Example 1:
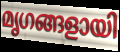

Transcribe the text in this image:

മൃഗങ്ങളായി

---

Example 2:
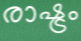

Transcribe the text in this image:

രാഷ്ട്രം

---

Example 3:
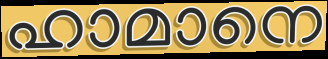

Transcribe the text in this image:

ഹാമാനെ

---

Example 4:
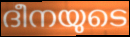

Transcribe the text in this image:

ദീനയുടെ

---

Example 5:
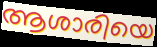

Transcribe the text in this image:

ആശാരിയെ